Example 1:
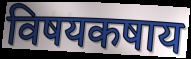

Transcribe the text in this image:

विषयकषाय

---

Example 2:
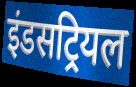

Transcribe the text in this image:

इंडसट्रियल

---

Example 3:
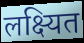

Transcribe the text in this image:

लक्ष्यित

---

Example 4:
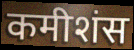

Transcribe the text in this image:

कमीशंस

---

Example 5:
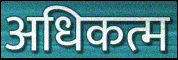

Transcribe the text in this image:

अधिकत्म